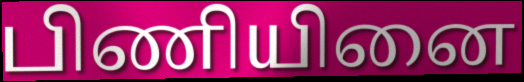
பிணியினை